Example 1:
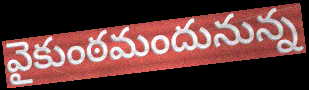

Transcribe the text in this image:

వైకుంఠమందునున్న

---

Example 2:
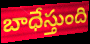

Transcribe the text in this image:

బాధేస్తుంది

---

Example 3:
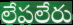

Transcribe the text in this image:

లేపలేరు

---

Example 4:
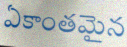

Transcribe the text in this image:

ఏకాంతమైన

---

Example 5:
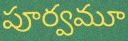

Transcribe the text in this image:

పూర్వమూ